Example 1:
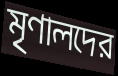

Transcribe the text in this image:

মৃণালদের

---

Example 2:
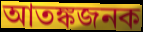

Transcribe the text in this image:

আতঙ্কজনক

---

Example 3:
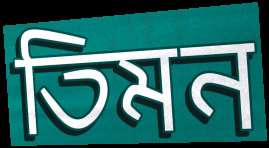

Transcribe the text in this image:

তিমন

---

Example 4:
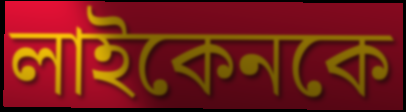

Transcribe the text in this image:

লাইকেনকে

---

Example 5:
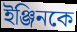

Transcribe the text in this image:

ইঞ্জিনকে